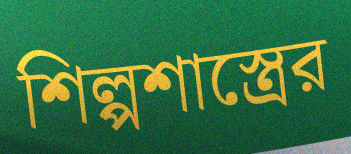
শিল্পশাস্ত্রের